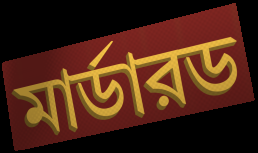
মার্ডারড